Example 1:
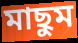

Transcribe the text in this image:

মাছুম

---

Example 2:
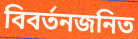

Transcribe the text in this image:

বিবর্তনজনিত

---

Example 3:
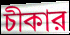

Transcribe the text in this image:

চীকার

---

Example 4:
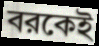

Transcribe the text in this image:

বরকেই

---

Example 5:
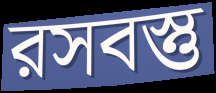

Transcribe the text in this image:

রসবস্তু